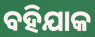
ବହିଯାକ